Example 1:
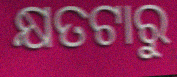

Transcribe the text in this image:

କ୍ଷତଟାରୁ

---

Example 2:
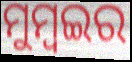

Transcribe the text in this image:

ମୁମ୍ବଇର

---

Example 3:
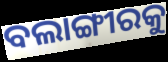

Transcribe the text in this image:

ବଲାଙ୍ଗୀରକୁ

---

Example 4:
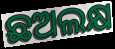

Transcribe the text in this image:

ଛଅଲକ୍ଷ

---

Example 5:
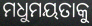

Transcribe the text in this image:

ମଧୁମୟତାକୁ